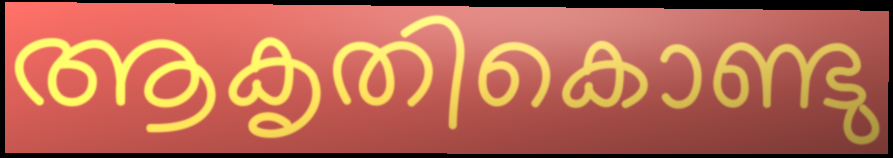
ആകൃതികൊണ്ടു